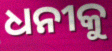
ଧନୀକୁ